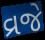
વ્રજે